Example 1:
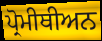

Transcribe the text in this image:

ਪ੍ਰੋਮੀਥੀਅਨ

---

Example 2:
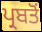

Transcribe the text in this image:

ਪ੍ਰਬਤੋਂ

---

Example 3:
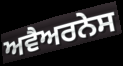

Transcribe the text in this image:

ਅਵੈਅਰਨੇਸ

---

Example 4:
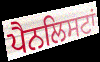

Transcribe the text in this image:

ਪੈਨਲਿਸਟਾਂ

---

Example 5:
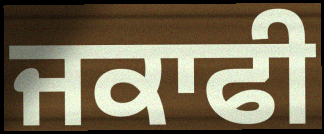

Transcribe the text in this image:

ਜਕਾਫੀ